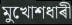
মুখোশধাৰী